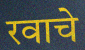
रवाचे